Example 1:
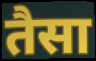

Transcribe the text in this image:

तैसा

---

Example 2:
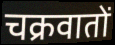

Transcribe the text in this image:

चक्रवातों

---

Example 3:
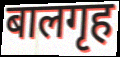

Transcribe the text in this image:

बालगृह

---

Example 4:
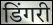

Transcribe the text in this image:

डिंगरी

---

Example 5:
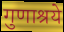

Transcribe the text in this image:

गुणाश्रये